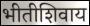
भीतीशिवाय